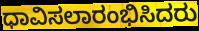
ಧಾವಿಸಲಾರಂಭಿಸಿದರು